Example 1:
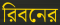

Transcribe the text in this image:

রিবনের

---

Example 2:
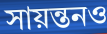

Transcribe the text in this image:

সায়ন্তনও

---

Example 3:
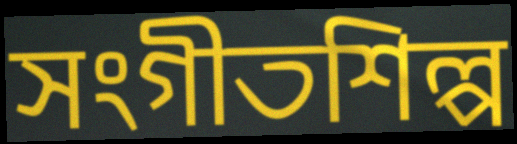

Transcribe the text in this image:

সংগীতশিল্প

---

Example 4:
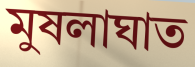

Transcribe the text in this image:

মুষলাঘাত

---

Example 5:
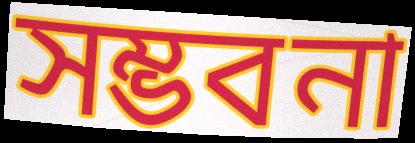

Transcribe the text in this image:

সম্ভবনা